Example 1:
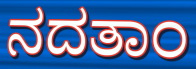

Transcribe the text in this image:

ನದತಾಂ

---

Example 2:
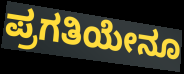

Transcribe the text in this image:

ಪ್ರಗತಿಯೇನೂ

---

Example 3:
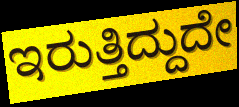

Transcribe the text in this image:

ಇರುತ್ತಿದ್ದುದೇ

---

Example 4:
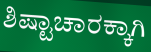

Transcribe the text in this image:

ಶಿಷ್ಟಾಚಾರಕ್ಕಾಗಿ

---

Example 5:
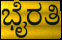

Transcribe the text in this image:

ಭೈರತಿ